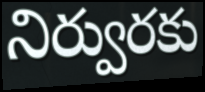
నిర్వురకు